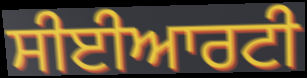
ਸੀਈਆਰਟੀ